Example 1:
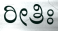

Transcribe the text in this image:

ರೀತಿಃ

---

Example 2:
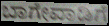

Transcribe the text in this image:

ಬಾಗೇವಾಡಿಗೆ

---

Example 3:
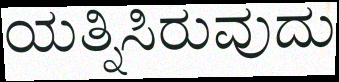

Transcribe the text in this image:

ಯತ್ನಿಸಿರುವುದು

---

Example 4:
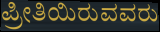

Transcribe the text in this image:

ಪ್ರೀತಿಯಿರುವವರು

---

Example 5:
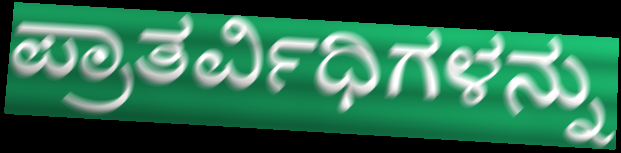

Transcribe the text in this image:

ಪ್ರಾತರ್ವಿಧಿಗಳನ್ನು